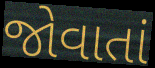
જોવાતાં